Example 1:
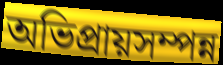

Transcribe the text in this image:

অভিপ্রায়সম্পন্ন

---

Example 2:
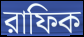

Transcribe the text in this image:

রাফিক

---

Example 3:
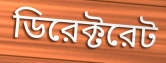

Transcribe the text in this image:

ডিরেক্টরেট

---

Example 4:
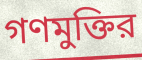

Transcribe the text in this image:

গণমুক্তির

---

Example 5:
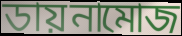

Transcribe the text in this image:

ডায়নামোজ